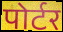
पोर्टर